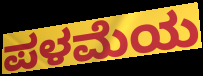
ಪಳಮೆಯ